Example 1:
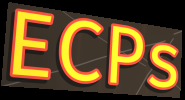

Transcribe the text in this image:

ECPs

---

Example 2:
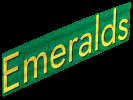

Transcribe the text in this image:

Emeralds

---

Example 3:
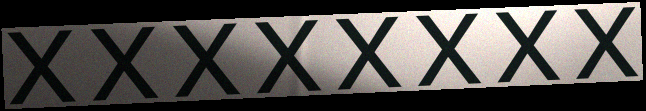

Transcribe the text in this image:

xxxxxxxx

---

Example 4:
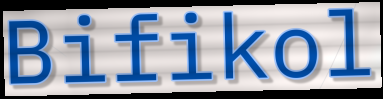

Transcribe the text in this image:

Bifikol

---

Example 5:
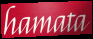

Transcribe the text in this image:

hamata